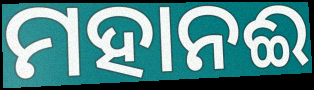
ମହାନଈ